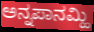
ಅನ್ನಪಾನಮ್ಹಿ